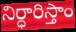
నిర్ధారిస్తాం